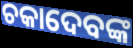
ଚକାଦେବଙ୍କ